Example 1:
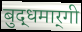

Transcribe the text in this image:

बुद्धमार्गी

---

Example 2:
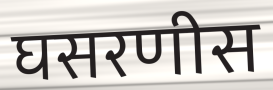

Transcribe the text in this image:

घसरणीस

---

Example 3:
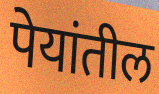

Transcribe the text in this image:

पेयांतील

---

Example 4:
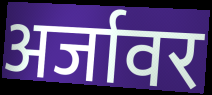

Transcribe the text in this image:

अर्जावर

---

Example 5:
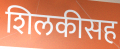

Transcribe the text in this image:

शिलकीसह